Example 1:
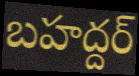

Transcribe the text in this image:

బహద్దర్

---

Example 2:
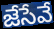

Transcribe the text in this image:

జేసేవే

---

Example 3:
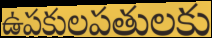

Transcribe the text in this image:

ఉపకులపతులకు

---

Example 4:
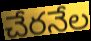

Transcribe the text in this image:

చేరనేల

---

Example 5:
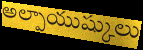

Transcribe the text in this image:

అల్పాయుష్కులు